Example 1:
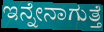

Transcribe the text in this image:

ಇನ್ನೇನಾಗುತ್ತೆ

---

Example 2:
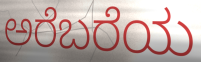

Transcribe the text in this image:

ಅರೆಬರೆಯ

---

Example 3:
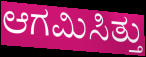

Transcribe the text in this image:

ಆಗಮಿಸಿತ್ತು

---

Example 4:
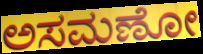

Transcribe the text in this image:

ಅಸಮಣೋ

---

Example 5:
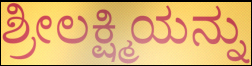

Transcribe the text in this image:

ಶ್ರೀಲಕ್ಷ್ಮಿಯನ್ನು